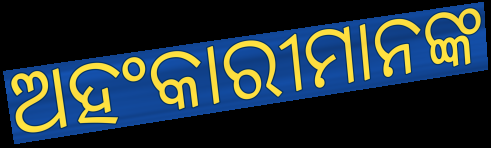
ଅହଂକାରୀମାନଙ୍କ